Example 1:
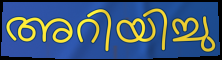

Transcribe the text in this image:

അറിയിച്ചു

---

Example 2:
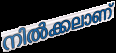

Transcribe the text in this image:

നിൽക്കലാണ്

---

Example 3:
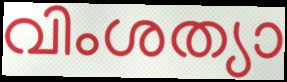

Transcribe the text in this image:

വിംശത്യാ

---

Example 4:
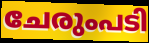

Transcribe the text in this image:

ചേരുംപടി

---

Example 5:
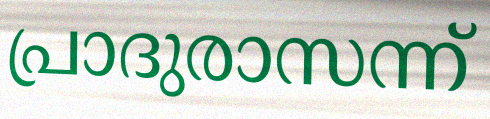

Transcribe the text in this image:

പ്രാദുരാസന്ന്